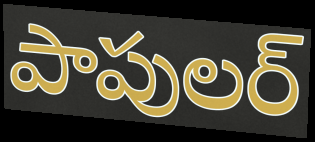
పాపులర్